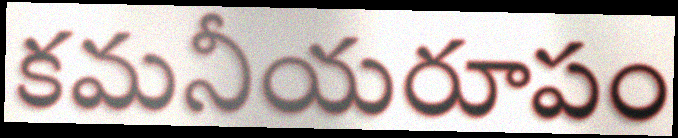
కమనీయరూపం